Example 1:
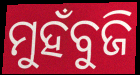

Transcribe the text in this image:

ମୁହଁବୁଜି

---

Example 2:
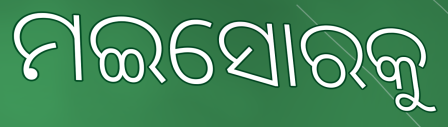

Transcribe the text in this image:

ମଇସୋରକୁ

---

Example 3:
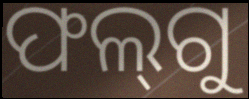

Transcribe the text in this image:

ଫଲ୍‌ଗୁ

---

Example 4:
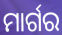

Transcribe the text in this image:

ମାର୍ଗର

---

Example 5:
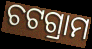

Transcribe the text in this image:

ଚଟଗ୍ରାମ